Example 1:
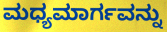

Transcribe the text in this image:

ಮಧ್ಯಮಾರ್ಗವನ್ನು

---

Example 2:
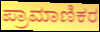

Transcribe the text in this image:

ಪ್ರಾಮಾಣಿಕರ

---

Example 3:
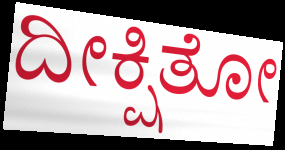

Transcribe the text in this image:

ದೀಕ್ಷಿತೋ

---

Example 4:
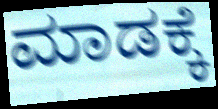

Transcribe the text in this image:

ಮಾಡಕ್ಕೆ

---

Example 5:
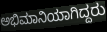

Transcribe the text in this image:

ಅಭಿಮಾನಿಯಾಗಿದ್ದರು